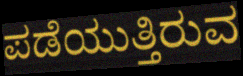
ಪಡೆಯುತ್ತಿರುವ